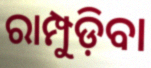
ରାମ୍ପୁଡ଼ିବା